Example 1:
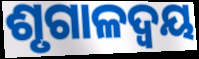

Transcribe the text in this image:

ଶୃଗାଳଦ୍ୱୟ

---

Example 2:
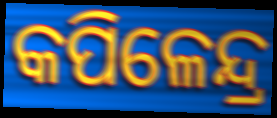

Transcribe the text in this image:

କପିଳେନ୍ଦ୍ର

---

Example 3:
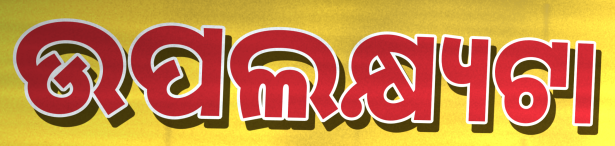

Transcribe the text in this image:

ଉପଲକ୍ଷ୍ୟଟା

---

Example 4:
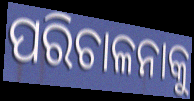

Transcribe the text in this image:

ପରିଚାଳନାକୁ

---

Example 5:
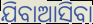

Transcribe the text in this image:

ଯିବାଆସିବା